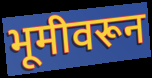
भूमीवरून